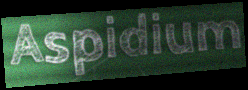
Aspidium